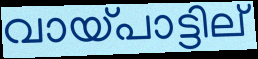
വായ്പാട്ടില്